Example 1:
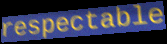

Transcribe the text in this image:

respectable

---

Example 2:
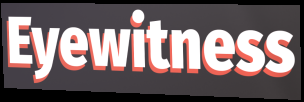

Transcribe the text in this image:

Eyewitness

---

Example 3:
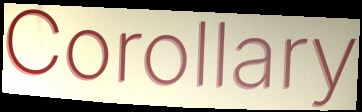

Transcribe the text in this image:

Corollary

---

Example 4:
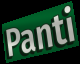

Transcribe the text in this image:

Panti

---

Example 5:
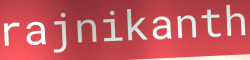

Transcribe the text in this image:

rajnikanth